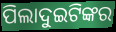
ପିଲାଦୁଇଟିଙ୍କର